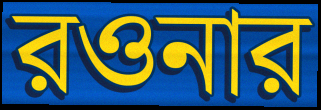
রওনার